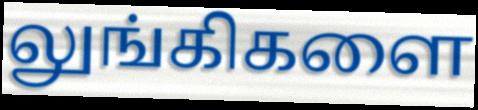
லுங்கிகளை